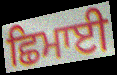
ਛਿਮਾਈ